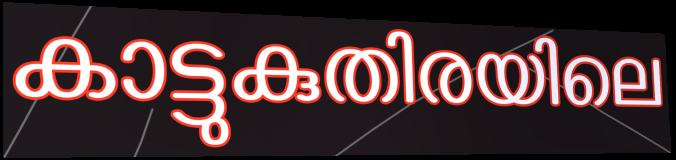
കാട്ടുകുതിരയിലെ